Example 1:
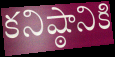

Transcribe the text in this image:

కనిష్ఠానికి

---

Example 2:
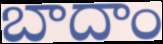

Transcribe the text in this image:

బాదాం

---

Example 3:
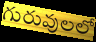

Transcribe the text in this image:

గురువులలో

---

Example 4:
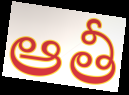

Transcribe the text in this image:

ఆతీ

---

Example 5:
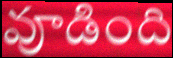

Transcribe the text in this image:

వూడింది